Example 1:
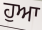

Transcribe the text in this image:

ਹੁਆ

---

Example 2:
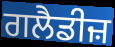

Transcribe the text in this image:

ਗਲੈਡੀਜ਼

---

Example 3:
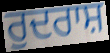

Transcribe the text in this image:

ਰੁਦਰਾਸ਼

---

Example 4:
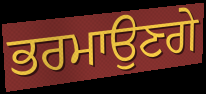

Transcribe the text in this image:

ਭਰਮਾਉਣਗੇ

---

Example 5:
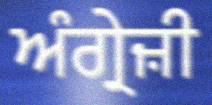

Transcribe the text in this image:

ਅੰਗ੍ਰੇਜ਼ੀ